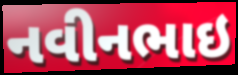
નવીનભાઇ